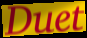
Duet